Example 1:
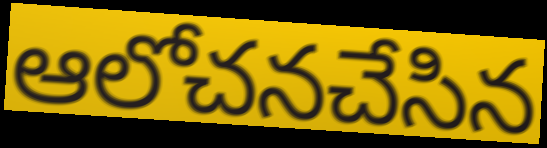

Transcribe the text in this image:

ఆలోచనచేసిన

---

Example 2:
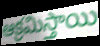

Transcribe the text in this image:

ఆక్రమిస్తాయి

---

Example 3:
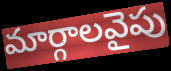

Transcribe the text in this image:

మార్గాలవైపు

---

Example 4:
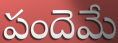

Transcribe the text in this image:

పందెమే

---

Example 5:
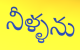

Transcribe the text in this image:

నీళ్ళను